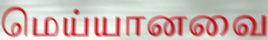
மெய்யானவை